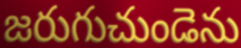
జరుగుచుండెను